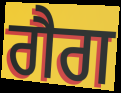
ਗੈਗ